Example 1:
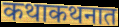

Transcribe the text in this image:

कथाकथनात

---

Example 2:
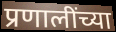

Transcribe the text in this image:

प्रणालींच्या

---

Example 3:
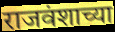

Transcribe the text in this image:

राजवंशाच्या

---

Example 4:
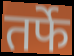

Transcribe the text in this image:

तर्फे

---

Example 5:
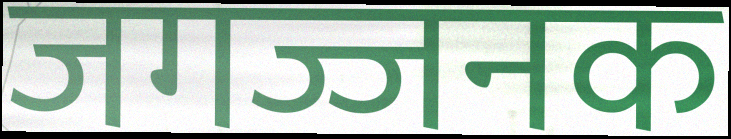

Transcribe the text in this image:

जगज्जनक